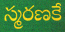
స్మరణకే